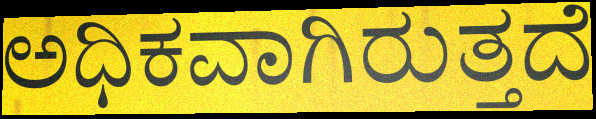
ಅಧಿಕವಾಗಿರುತ್ತದೆ